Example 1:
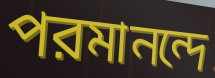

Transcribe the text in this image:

পরমানন্দে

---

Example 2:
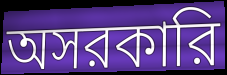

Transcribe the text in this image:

অসরকারি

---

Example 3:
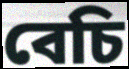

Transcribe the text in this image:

বেচি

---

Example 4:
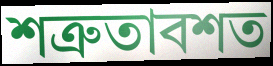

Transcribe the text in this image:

শত্রুতাবশত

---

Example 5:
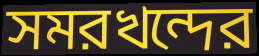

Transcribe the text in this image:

সমরখন্দের